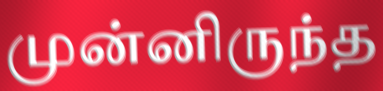
முன்னிருந்த